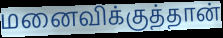
மனைவிக்குத்தான்